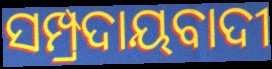
ସମ୍ପ୍ରଦାୟବାଦୀ